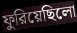
ফুরিয়েছিলো